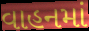
વાહનમાં